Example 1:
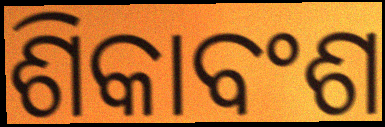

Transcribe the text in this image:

ଶିକାବଂଶ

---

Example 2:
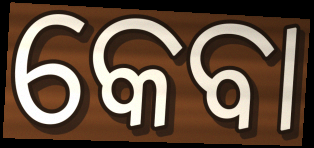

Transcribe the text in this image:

କେବା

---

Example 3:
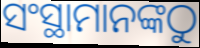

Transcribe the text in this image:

ସଂସ୍ଥାମାନଙ୍କଠୁ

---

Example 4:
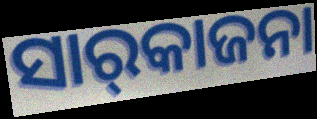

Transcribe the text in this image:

ସାର୍‌କାଜନା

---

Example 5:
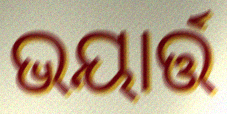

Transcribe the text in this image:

ଭୟାର୍ତ୍ତ